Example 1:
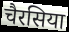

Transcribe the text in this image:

चैरसिया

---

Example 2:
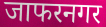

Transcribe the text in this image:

जाफरनगर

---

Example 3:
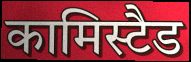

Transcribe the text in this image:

कामिस्टैड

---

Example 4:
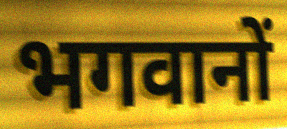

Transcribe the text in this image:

भगवानों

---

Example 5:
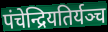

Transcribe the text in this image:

पंचेन्द्रियतिर्यञ्च